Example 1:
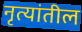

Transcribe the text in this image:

नृत्यांतील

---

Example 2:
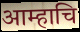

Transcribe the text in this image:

आम्हाचि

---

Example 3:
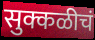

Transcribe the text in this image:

सुक्कळीचं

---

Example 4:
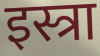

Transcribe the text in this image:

इस्त्रा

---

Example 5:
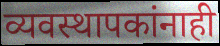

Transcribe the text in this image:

व्यवस्थापकांनाही